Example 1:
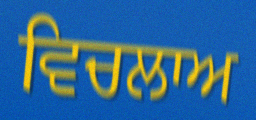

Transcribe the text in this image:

ਵਿਚਲਾਅ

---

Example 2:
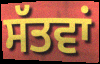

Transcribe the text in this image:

ਸੱਤਵਾਂ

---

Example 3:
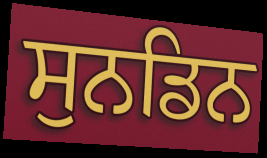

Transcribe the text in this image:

ਸੁਨਡਿਨ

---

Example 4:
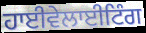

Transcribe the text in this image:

ਹਾਈਵੇਲਾਈਟਿੰਗ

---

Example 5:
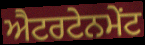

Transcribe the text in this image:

ਐਟਰਟੇਨਮੇਂਟ